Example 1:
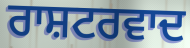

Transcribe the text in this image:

ਰਾਸ਼ਟਰਵਾਦ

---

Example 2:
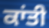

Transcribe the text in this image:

ਕਾਂਤੀ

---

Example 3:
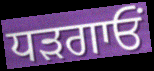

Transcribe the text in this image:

ਧੜਗਾਓਂ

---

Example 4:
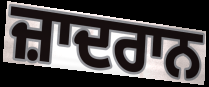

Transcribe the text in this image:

ਜ਼ਾਦਰਾਨ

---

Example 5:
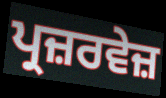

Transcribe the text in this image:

ਪ੍ਰਜ਼ਰਵੇਜ਼